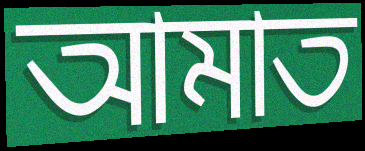
আমাত